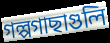
গল্পগাছাগুলি